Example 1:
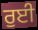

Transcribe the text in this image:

ਰੁਈ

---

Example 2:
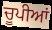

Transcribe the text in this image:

ਚੂਪੀਆਂ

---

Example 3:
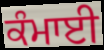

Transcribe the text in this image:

ਕੰਮਾਈ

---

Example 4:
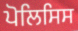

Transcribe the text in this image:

ਪੋਲਿਸਿਸ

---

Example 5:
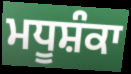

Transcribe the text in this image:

ਮਧੂਸ਼ੰਕਾ